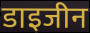
डाइजीन